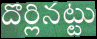
దొర్లినట్టు